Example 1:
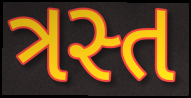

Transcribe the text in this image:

ત્રસ્ત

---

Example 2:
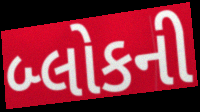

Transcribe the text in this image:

બ્લોકની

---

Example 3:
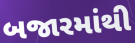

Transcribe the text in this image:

બજારમાંથી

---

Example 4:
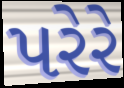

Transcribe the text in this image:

પરેરે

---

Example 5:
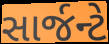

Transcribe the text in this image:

સાર્જન્ટે